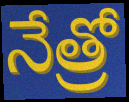
నేత్రో